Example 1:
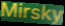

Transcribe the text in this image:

Mirsky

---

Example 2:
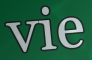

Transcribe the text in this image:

vie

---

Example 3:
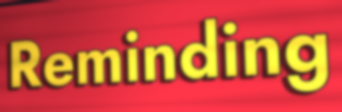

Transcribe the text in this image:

Reminding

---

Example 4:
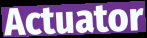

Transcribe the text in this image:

Actuator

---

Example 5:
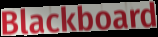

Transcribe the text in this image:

Blackboard